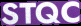
STQC